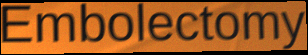
Embolectomy